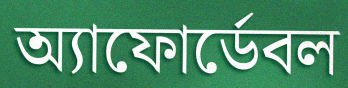
অ্যাফোর্ডেবল